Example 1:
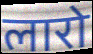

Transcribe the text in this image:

लारो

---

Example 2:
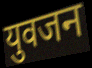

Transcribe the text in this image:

युवजन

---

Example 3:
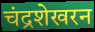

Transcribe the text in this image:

चंद्रशेखरन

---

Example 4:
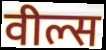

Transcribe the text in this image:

वील्स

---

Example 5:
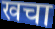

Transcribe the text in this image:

खचा